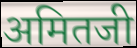
अमितजी